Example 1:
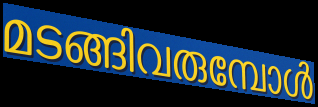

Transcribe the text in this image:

മടങ്ങിവരുമ്പോൾ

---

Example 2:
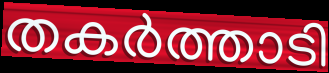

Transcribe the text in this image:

തകർത്താടി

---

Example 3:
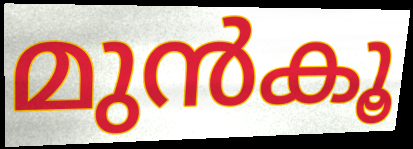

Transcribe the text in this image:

മുൻകൂ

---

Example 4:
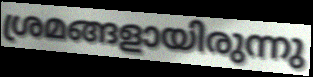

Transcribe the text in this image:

ശ്രമങ്ങളായിരുന്നു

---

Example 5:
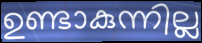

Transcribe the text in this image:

ഉണ്ടാകുന്നില്ല